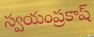
స్వయంప్రకాష్